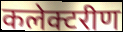
कलेक्टरीण